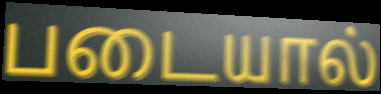
படையால்